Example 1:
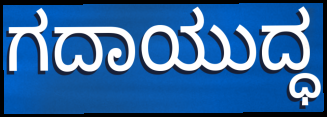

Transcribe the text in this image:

ಗದಾಯುದ್ಧ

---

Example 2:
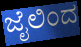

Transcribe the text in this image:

ಜೈಲಿಂದ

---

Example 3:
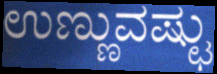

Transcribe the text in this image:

ಉಣ್ಣುವಷ್ಟು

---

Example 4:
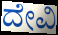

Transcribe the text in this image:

ದೇವಿ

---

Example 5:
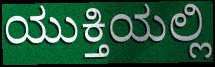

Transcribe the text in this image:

ಯುಕ್ತಿಯಲ್ಲಿ